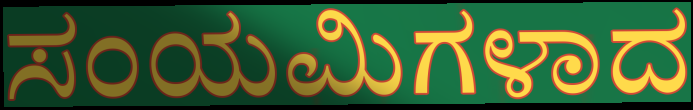
ಸಂಯಮಿಗಳಾದ